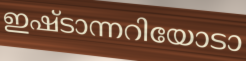
ഇഷ്ടാന്നറിയോടാ